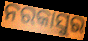
ନରକାସୁର